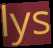
lys